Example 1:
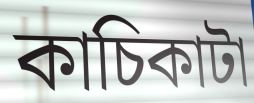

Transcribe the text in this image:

কাচিকাটা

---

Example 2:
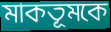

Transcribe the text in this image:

মাকতূমকে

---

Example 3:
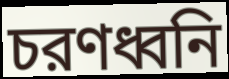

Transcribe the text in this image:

চরণধ্বনি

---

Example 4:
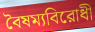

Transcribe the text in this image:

বৈষম্যবিরোধী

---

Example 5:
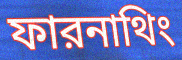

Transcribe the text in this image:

ফারনাথিং